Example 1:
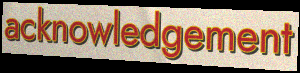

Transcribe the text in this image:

acknowledgement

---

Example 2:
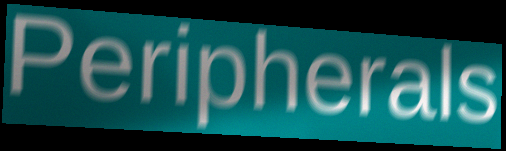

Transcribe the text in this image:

Peripherals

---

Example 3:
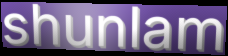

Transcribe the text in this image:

shunlam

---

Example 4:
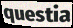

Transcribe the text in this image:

questia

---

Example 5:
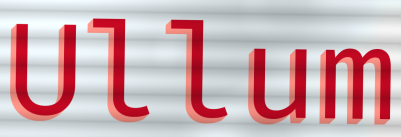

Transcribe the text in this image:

Ullum